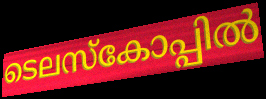
ടെലസ്കോപ്പിൽ